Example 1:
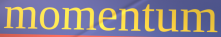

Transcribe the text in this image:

momentum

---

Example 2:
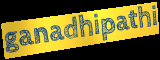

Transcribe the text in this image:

ganadhipathi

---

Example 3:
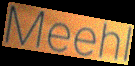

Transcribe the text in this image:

Meehl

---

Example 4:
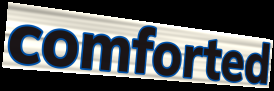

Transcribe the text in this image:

comforted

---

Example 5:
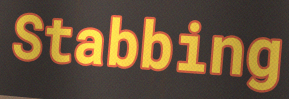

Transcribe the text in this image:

Stabbing